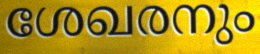
ശേഖരനും